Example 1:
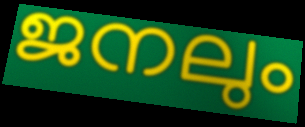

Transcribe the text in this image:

ജനലും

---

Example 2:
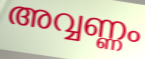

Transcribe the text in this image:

അവ്വണ്ണം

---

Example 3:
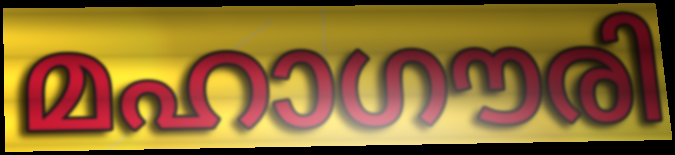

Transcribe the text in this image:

മഹാഗൗരി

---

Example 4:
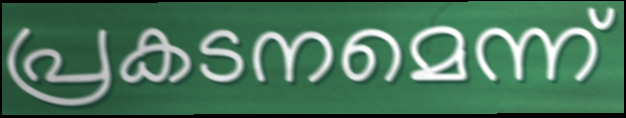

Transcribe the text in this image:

പ്രകടനമെന്ന്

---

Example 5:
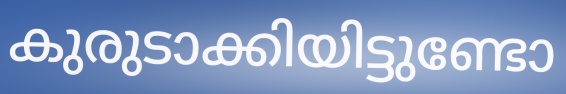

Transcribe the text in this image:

കുരുടാക്കിയിട്ടുണ്ടോ